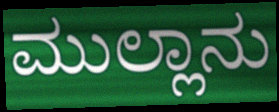
ಮುಲ್ಲಾನು